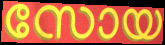
സോയ